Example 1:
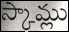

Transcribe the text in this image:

స్కామ్లు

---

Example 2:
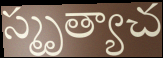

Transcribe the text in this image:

స్మృత్యాచ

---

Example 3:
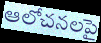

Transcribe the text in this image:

ఆలోచనలపై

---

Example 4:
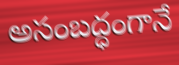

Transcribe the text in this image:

అసంబద్ధంగానే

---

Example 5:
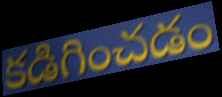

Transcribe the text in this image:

కడిగించడం